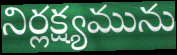
నిర్లక్ష్యమును